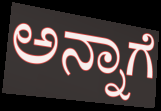
ಅನ್ನಾಗೆ